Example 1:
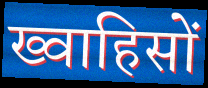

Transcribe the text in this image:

ख्वाहिसों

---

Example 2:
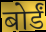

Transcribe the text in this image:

बोर्डं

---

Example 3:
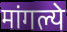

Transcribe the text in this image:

मांगल्ये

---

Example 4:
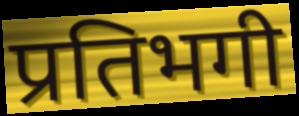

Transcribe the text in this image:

प्रतिभगी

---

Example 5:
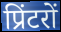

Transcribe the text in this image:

प्रिंटरों